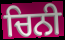
ਚਿਨੀ